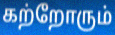
கற்றோரும்